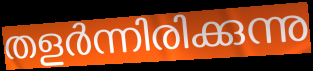
തളർന്നിരിക്കുന്നു